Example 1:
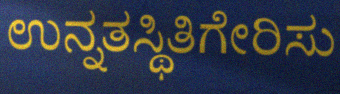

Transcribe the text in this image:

ಉನ್ನತಸ್ಥಿತಿಗೇರಿಸು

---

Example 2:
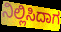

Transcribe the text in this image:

ನಿಲ್ಲಿಸಿದಾಗ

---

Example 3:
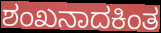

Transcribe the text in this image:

ಶಂಖನಾದಕಿಂತ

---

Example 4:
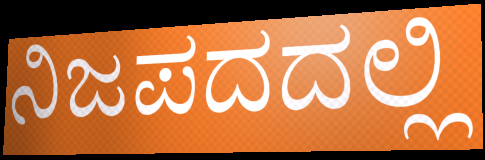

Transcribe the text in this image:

ನಿಜಪದದಲ್ಲಿ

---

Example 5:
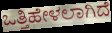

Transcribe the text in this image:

ಒತ್ತಿಹೇಳಲಾಗಿದೆ